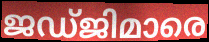
ജഡ്ജിമാരെ